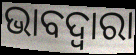
ଭାବଦ୍ଵାରା